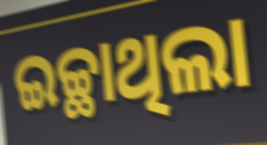
ଇଚ୍ଛାଥିଲା